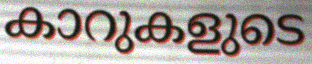
കാറുകളുടെ